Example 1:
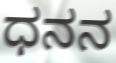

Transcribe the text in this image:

ಧನನ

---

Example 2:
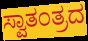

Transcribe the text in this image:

ಸ್ವಾತಂತ್ರದ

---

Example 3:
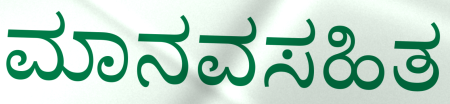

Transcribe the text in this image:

ಮಾನವಸಹಿತ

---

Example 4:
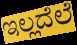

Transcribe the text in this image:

ಇಲ್ಲದೆಲೆ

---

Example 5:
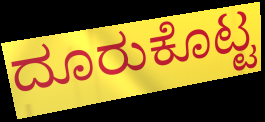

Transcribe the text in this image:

ದೂರುಕೊಟ್ಟ